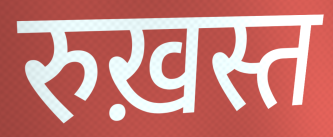
रुख़स्त